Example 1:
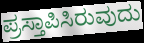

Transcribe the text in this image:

ಪ್ರಸ್ತಾಪಿಸಿರುವುದು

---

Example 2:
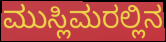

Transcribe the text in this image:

ಮುಸ್ಲಿಮರಲ್ಲಿನ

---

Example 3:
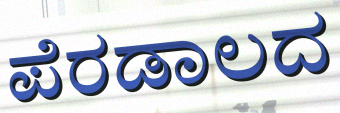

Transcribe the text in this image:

ಪೆರಡಾಲದ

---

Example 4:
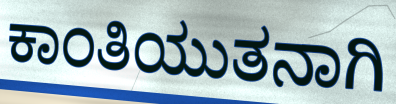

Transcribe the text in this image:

ಕಾಂತಿಯುತನಾಗಿ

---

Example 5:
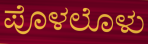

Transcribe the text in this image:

ಪೊಳಲೊಳು